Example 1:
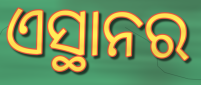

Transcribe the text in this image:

ଏସ୍ଥାନର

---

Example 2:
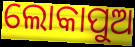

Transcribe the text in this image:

ଲୋକାପୁଅ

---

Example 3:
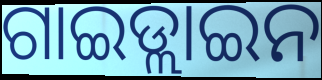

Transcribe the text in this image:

ଗାଇଡ୍ଲାଇନ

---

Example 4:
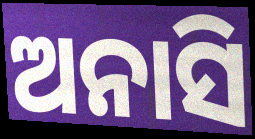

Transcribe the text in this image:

ଅନାସି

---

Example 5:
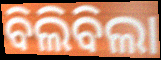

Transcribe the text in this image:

ବିଲିବିଲା